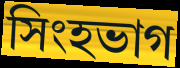
সিংহভাগ